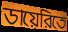
ডায়েরিতে